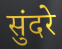
सुंदरे